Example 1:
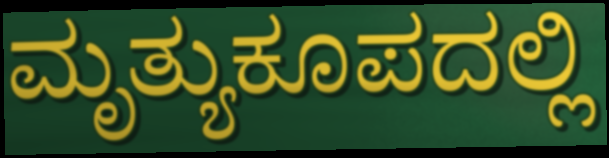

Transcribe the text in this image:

ಮೃತ್ಯುಕೂಪದಲ್ಲಿ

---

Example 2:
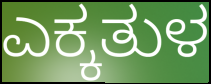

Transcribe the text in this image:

ಎಕ್ಕತುಳ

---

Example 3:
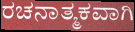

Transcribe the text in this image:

ರಚನಾತ್ಮಕವಾಗಿ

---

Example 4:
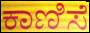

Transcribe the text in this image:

ಕಾಣಿಸೆ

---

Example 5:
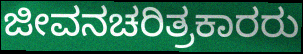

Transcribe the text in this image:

ಜೀವನಚರಿತ್ರಕಾರರು